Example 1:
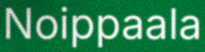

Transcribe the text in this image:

Noippaala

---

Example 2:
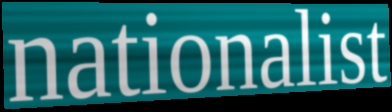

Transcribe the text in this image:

nationalist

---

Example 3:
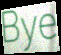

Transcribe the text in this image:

Bye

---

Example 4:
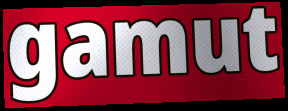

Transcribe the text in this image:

gamut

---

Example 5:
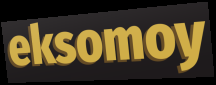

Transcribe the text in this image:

eksomoy